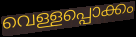
വെള്ളപ്പൊക്കം